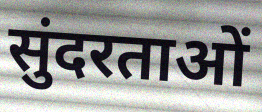
सुंदरताओं